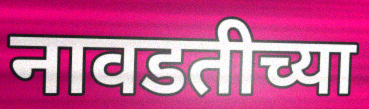
नावडतीच्या